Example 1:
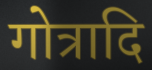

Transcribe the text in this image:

गोत्रादि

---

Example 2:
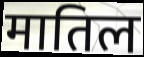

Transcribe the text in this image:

मातिल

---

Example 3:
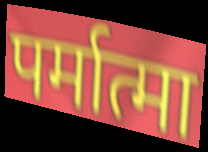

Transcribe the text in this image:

पर्मात्मा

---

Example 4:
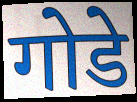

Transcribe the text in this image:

गोडे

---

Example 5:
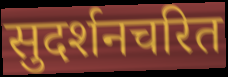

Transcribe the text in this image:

सुदर्शनचरित